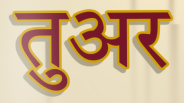
तुअर